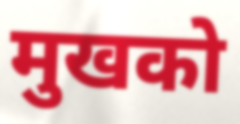
मुखको